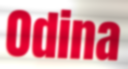
Odina